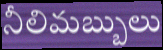
నీలిమబ్బులు